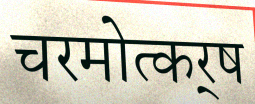
चरमोत्कर्ष